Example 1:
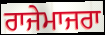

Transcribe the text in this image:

ਰਾਜੇਮਾਜਰਾ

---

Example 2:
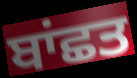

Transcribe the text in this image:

ਬਾਂਛਤ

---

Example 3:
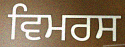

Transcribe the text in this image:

ਵਿਮਰਸ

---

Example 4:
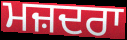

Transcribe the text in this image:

ਮਜ਼ਦਰਾ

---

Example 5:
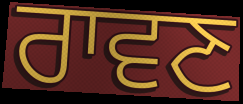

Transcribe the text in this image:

ਰਾਵਣ